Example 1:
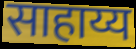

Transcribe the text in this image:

साहाय्य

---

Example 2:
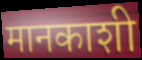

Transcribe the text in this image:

मानकाशी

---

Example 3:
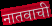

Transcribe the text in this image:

नातवाची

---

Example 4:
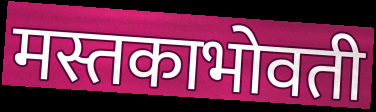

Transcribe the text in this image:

मस्तकाभोवती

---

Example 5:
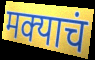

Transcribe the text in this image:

मक्याचं